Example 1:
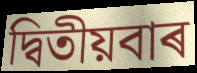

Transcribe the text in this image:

দ্বিতীয়বাৰ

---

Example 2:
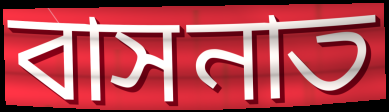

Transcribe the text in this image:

বাসনাত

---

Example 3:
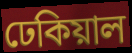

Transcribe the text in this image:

ঢেকিয়াল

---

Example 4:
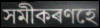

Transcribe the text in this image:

সমীকৰণহে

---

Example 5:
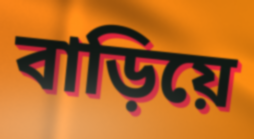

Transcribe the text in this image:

বাড়িয়ে